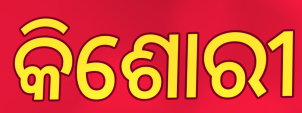
କିଶୋରୀ